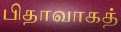
பிதாவாகத்